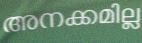
അനക്കമില്ല